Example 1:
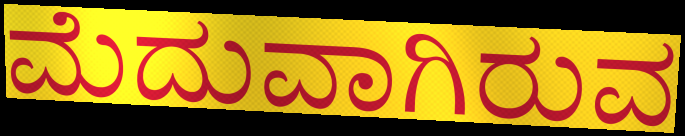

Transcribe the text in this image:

ಮೆದುವಾಗಿರುವ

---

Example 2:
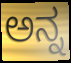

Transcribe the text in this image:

ಅನ್ನ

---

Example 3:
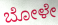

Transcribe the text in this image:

ಬೋಳೇ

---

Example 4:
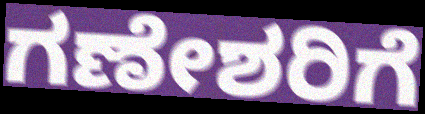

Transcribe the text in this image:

ಗಣೇಶರಿಗೆ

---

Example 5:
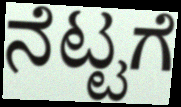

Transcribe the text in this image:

ನೆಟ್ಟಗೆ